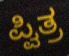
ಪ್ವಿತ್ರ